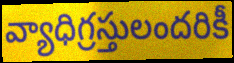
వ్యాధిగ్రస్తులందరికీ